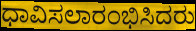
ಧಾವಿಸಲಾರಂಭಿಸಿದರು